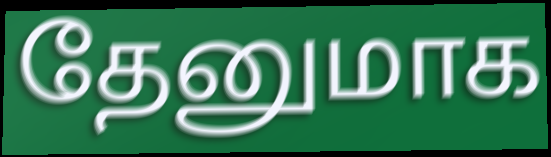
தேனுமாக